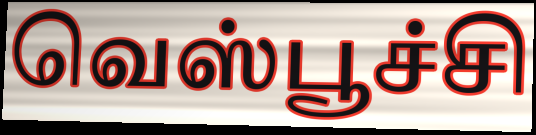
வெஸ்பூச்சி